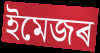
ইমেজৰ